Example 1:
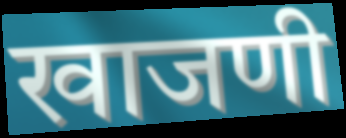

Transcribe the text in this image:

खाजणी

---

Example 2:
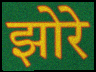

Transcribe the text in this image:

झोरे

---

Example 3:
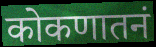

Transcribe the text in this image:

कोकणातनं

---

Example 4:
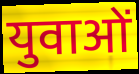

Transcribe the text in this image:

युवाओं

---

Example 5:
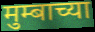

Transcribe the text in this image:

मुम्बाच्या